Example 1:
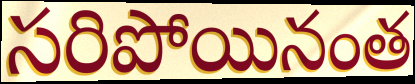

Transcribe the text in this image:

సరిపోయినంత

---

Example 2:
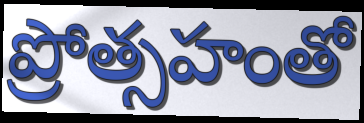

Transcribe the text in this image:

ప్రోత్సహంతో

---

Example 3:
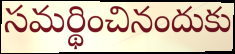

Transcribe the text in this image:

సమర్థించినందుకు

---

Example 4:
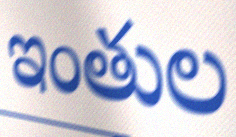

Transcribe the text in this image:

ఇంతుల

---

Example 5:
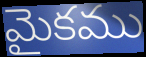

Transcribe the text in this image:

మైకము